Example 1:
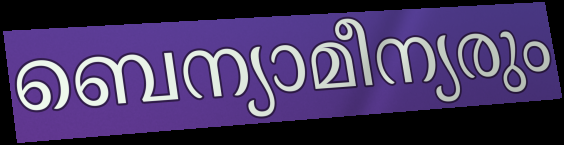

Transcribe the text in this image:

ബെന്യാമീന്യരും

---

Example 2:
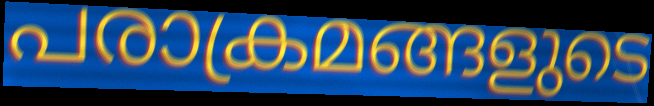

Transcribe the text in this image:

പരാക്രമങ്ങളുടെ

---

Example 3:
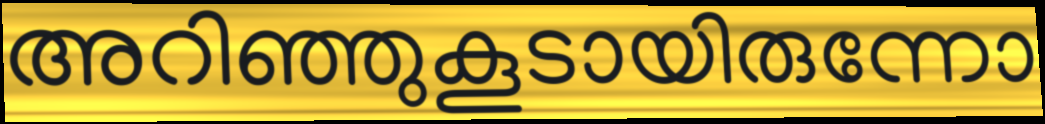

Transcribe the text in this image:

അറിഞ്ഞുകൂടായിരുന്നോ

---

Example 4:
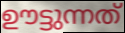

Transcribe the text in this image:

ഊട്ടുന്നത്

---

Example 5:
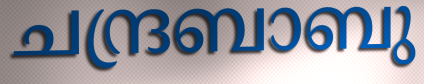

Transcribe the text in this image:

ചന്ദ്രബാബു